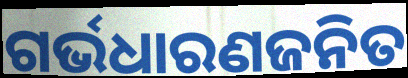
ଗର୍ଭଧାରଣଜନିତ